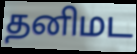
தனிமட